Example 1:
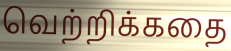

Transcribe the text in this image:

வெற்றிக்கதை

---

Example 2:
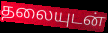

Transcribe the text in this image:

தலையுடன்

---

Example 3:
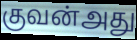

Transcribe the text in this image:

குவன்அது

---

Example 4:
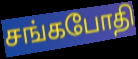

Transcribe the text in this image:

சங்கபோதி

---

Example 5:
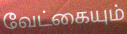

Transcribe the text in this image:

வேட்கையும்